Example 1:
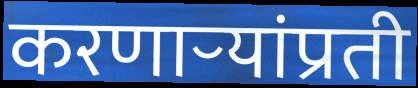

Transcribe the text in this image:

करणाऱ्यांप्रती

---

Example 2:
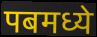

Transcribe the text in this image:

पबमध्ये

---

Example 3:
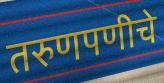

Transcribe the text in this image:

तरुणपणीचे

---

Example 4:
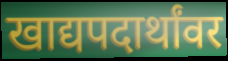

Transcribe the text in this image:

खाद्यपदार्थांवर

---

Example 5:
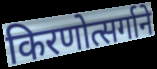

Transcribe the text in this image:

किरणोत्सर्गाने